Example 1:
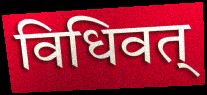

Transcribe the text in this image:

विधिवत्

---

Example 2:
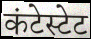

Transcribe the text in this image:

कंटेस्टेट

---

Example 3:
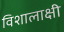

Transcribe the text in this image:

विशालाक्षी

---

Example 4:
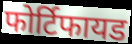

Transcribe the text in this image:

फोर्टिफायड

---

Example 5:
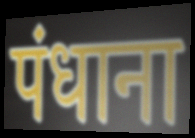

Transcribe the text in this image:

पंधाना